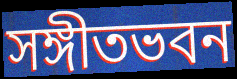
সঙ্গীতভবন